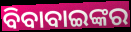
ବିବାବାଇଙ୍କର